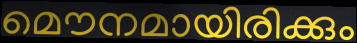
മൌനമായിരിക്കും